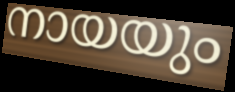
നായയും